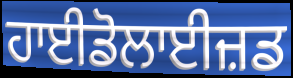
ਹਾਈਡੋਲਾਈਜ਼ਡ